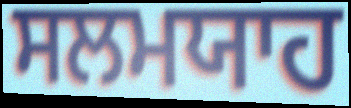
ਸਲਮਯਾਹ